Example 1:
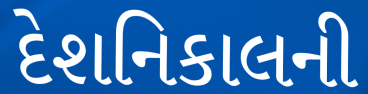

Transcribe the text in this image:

દેશનિકાલની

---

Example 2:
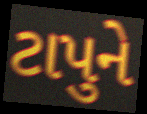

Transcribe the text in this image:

ટાપુને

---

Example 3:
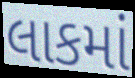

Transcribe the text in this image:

લાકમાં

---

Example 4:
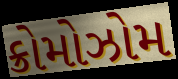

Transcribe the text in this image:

ક્રોમોઝોમ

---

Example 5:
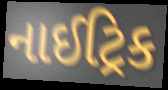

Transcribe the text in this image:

નાઈટ્રિક